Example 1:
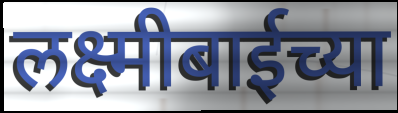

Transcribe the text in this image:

लक्ष्मीबाईच्या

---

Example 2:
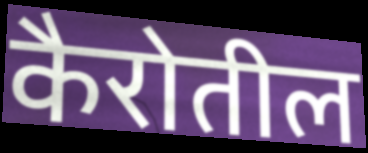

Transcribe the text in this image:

कैरोतील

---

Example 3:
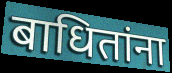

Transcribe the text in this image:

बाधितांना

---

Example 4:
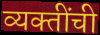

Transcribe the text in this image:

व्यक्‍तींची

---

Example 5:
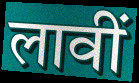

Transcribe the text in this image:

लावीं